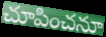
చూపించనూ